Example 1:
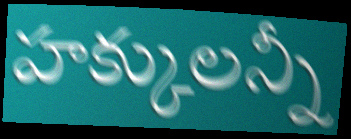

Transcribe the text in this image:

హక్కులన్నీ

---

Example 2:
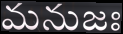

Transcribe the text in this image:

మనుజః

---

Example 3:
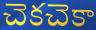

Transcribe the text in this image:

చెకచెకా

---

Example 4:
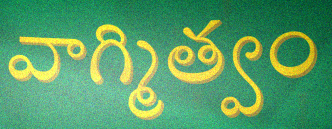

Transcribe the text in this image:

వాగ్మిత్వం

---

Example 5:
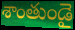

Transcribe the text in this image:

శాంతుండై